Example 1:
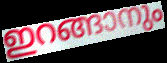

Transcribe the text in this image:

ഇറങ്ങാനും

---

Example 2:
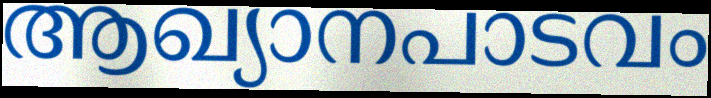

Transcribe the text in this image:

ആഖ്യാനപാടവം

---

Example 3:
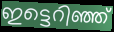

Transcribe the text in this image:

ഇട്ടെറിഞ്ഞ്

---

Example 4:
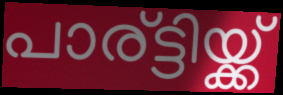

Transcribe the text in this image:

പാര്ട്ടിയ്ക്ക്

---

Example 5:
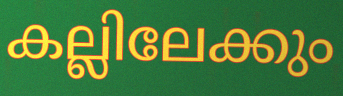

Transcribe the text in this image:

കല്ലിലേക്കും